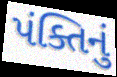
પંક્તિનું